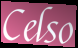
Celso